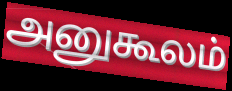
அனுகூலம்